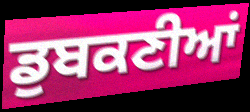
ਡੁਬਕਣੀਆਂ